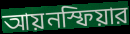
আয়নস্ফিয়ার